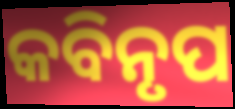
କବିନୃପ